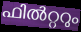
ഫിൽറ്ററും